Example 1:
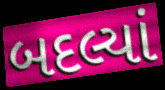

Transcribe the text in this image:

બદલ્યાં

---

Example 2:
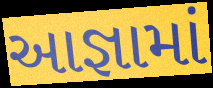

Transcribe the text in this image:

આજ્ઞામાં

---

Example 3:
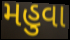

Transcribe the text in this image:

મહુવા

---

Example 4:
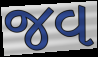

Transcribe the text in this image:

જવ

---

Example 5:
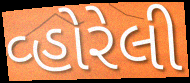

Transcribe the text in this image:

વ્હોરેલી